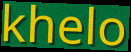
khelo